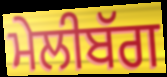
ਮੇਲੀਬੱਗ